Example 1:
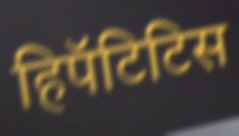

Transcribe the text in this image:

हिपॅटिटिस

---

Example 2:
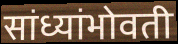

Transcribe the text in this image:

सांध्यांभोवती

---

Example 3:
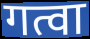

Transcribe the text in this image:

गत्वा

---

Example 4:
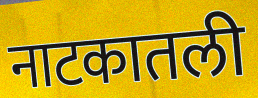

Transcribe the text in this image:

नाटकातली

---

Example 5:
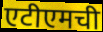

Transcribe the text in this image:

एटीएमची